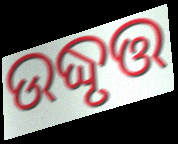
ଉଦ୍ଧୃତ୍ତ